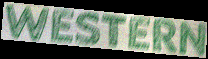
WESTERN